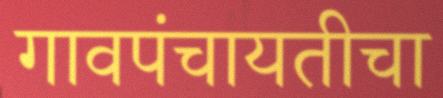
गावपंचायतीचा